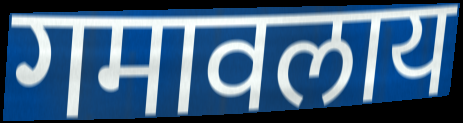
गमावलाय